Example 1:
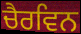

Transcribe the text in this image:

ਚੈਰਵਿਨ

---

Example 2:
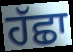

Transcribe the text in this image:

ਹੱਛਾ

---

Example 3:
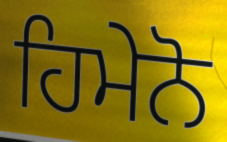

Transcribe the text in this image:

ਹਿਮੇਨੋ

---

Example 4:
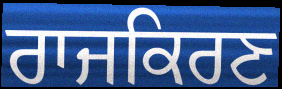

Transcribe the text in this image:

ਰਾਜਕਿਰਣ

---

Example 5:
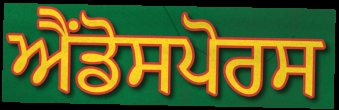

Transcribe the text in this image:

ਐਂਡੋਸਪੋਰਸ